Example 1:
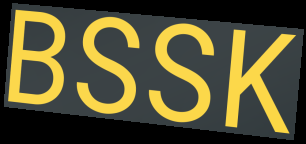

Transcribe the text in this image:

BSSK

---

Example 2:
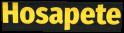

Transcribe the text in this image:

Hosapete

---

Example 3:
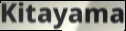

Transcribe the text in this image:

Kitayama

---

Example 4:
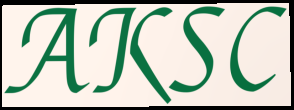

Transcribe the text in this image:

AKSC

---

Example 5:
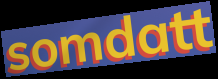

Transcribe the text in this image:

somdatt